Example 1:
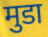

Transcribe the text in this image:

मुडा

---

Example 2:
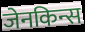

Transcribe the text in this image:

जेनकिन्स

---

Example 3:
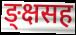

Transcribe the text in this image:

ङ्क्षसह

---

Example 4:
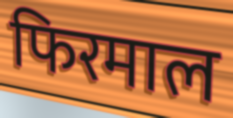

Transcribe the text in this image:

फिरमाल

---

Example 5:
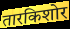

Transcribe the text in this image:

तारकिशोर